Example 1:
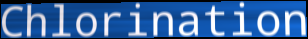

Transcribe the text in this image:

Chlorination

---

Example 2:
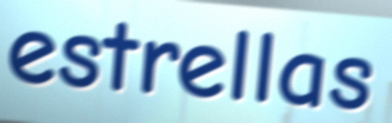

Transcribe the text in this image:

estrellas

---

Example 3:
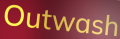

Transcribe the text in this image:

Outwash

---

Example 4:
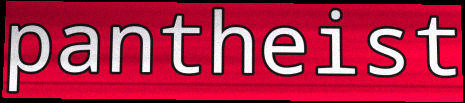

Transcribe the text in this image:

pantheist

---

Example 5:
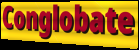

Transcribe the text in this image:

Conglobate